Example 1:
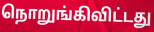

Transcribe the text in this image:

நொறுங்கிவிட்டது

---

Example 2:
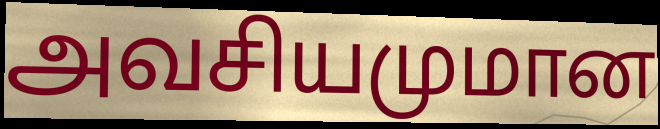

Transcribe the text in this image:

அவசியமுமான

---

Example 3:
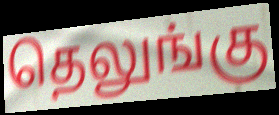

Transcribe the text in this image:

தெலுங்கு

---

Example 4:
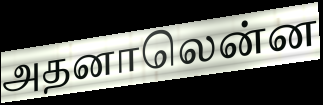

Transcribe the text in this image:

அதனாலென்ன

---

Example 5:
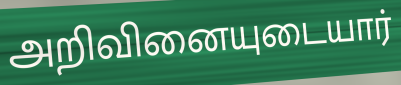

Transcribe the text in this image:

அறிவினையுடையார்